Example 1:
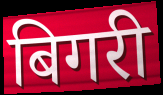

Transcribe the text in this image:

बिगरी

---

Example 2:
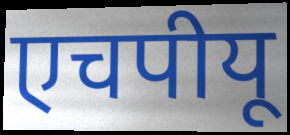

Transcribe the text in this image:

एचपीयू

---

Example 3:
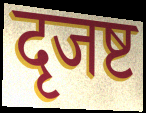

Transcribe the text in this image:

दृजष्ट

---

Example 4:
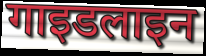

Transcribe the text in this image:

गाइडलाइन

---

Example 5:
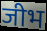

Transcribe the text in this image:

जीभ